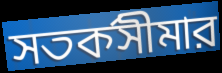
সতর্কসীমার